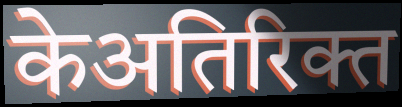
केअतिरिक्त